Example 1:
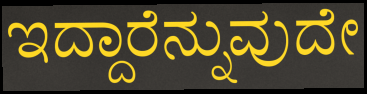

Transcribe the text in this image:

ಇದ್ದಾರೆನ್ನುವುದೇ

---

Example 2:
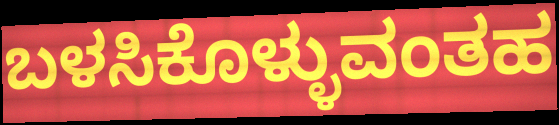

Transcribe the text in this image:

ಬಳಸಿಕೊಳ್ಳುವಂತಹ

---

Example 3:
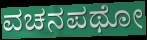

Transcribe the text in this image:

ವಚನಪಥೋ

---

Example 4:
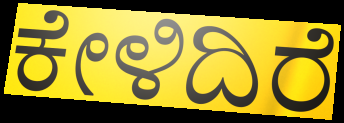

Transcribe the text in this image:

ಕೇಳಿದಿರೆ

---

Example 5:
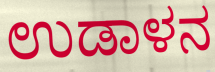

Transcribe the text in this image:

ಉಡಾಳನ